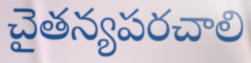
చైతన్యపరచాలి